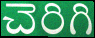
చెరిగి